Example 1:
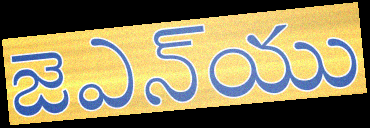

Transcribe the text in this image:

జెఎన్‌యు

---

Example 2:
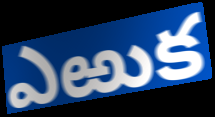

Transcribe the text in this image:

ఎఱుక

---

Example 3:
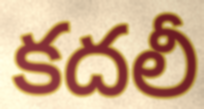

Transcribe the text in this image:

కదలీ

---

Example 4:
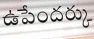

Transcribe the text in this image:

ఉపేందర్కు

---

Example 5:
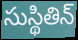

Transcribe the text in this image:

సుస్థితిన్